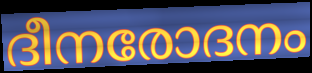
ദീനരോദനം